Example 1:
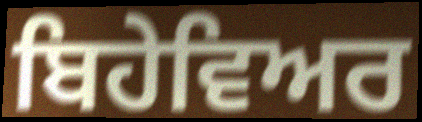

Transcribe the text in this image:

ਬਿਹੇਵਿਅਰ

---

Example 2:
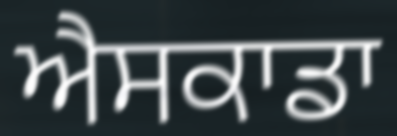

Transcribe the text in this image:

ਐਸਕਾਡਾ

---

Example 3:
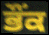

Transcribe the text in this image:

ਭੌਂਕ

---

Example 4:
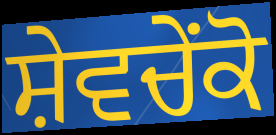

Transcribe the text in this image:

ਸ਼ੇਵਚੇਂਕੋ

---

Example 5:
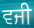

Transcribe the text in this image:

ਵਜੀ